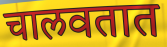
चालवतात